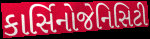
કાર્સિનોજેનિસિટી